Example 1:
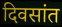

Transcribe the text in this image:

दिवसांत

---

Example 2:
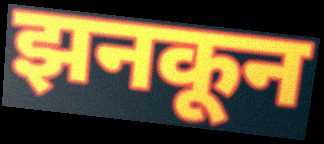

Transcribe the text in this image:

झनकून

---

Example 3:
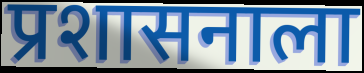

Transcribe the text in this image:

प्रशासनाला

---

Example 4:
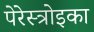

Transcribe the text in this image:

पेरेस्त्रोइका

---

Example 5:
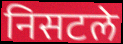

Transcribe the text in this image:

निसटले